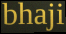
bhaji